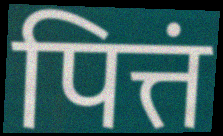
पित्तं